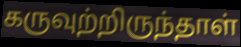
கருவுற்றிருந்தாள்